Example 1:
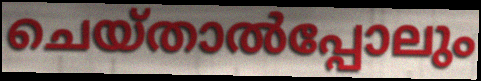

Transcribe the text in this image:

ചെയ്താൽപ്പോലും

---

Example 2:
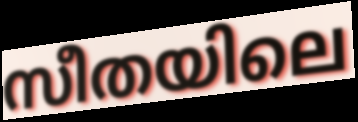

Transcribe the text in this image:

സീതയിലെ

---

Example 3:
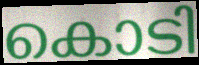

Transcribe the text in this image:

കൊടി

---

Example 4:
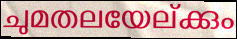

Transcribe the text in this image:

ചുമതലയേല്ക്കും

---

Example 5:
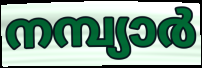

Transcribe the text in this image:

നമ്പ്യാർ